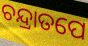
ଚନ୍ଦ୍ରାତପେ